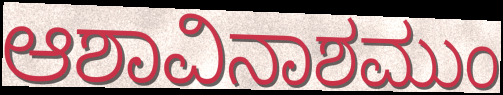
ಆಶಾವಿನಾಶಮುಂ